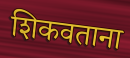
शिकवताना